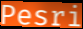
Pesri